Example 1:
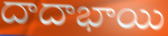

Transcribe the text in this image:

దాదాభాయి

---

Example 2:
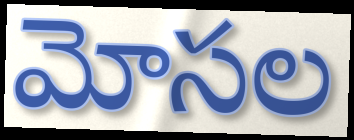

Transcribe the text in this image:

మోసల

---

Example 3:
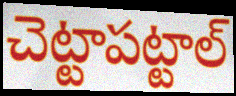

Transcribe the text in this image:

చెట్టాపట్టాల్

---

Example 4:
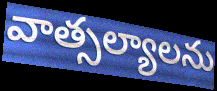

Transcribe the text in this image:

వాత్సల్యాలను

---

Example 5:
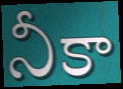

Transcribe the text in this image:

నీకా